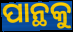
ପାନ୍ଥକୁ